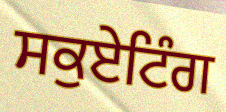
ਸਕੁਏਟਿੰਗ